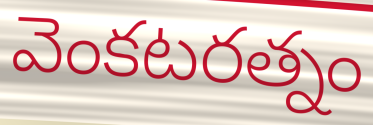
వెంకటరత్నం